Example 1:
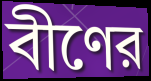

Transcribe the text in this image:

বীণের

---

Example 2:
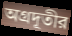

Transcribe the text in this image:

অগ্রদূতীর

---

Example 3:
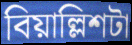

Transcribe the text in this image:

বিয়াল্লিশটা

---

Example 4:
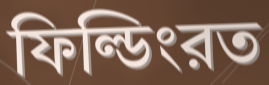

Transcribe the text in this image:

ফিল্ডিংরত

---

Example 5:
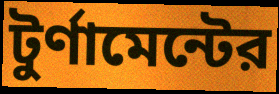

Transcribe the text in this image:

টুর্ণামেন্টের